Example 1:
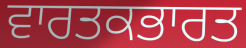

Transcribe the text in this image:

ਵਾਰਤਕਭਾਰਤ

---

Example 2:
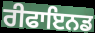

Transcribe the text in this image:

ਰੀਫਾਇਨਡ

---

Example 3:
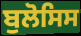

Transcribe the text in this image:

ਬੁਲੋਸਿਸ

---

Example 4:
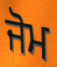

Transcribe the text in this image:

ਜੋਮ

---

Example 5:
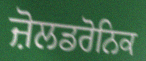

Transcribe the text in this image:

ਜ਼ੋਲਡਰੋਨਿਕ